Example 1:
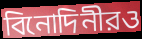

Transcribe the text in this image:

বিনোদিনীরও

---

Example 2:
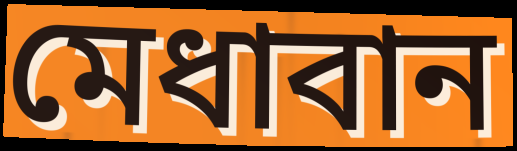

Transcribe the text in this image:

মেধাবান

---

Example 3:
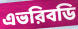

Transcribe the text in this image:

এভরিবডি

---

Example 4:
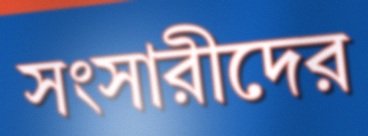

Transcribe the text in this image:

সংসারীদের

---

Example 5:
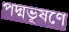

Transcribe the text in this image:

পদ্মভূষণে